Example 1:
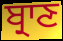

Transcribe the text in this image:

ਬ੍ਰਾਣ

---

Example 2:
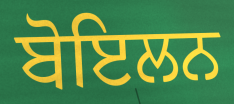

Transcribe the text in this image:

ਬੋਇਲਨ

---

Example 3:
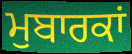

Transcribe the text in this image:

ਮੁਬਾਰਕਾਂ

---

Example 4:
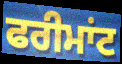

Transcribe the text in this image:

ਫਰੀਮਾਂਟ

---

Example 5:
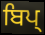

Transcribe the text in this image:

ਬਿਪ੍